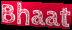
Bhaat